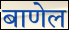
बाणेल